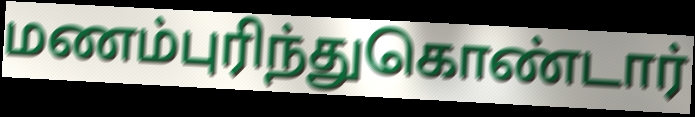
மணம்புரிந்துகொண்டார்